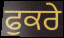
ਫੁਕਰੇ